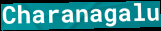
Charanagalu